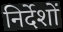
निर्देशों